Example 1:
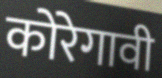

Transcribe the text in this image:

कोरेगावी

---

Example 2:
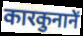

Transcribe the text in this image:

कारकुनानें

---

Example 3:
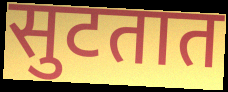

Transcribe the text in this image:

सुटतात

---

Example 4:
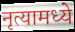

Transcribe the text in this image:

नृत्यामध्ये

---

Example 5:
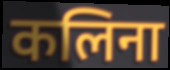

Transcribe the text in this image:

कलिना